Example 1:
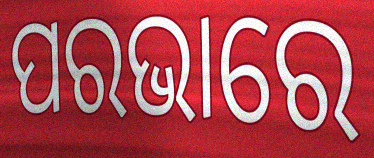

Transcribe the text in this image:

ପରଭାରେ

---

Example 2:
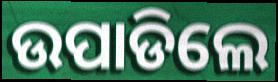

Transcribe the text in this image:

ଉପାଡିଲେ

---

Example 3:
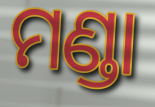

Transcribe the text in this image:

ମଣ୍ଡା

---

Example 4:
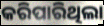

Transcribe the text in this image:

କରିପାରିଥିଲା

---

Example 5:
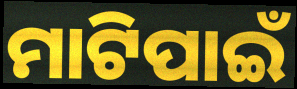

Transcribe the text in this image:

ମାଟିପାଇଁ